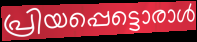
പ്രിയപ്പെട്ടൊരാൾ